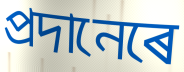
প্ৰদানেৰে